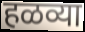
हळव्या